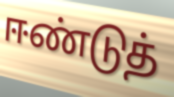
ஈண்டுத்